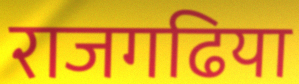
राजगढिया